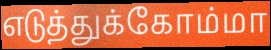
எடுத்துக்கோம்மா